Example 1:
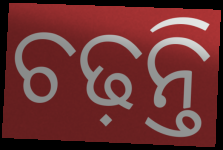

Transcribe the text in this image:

ଚଢ଼ନ୍ତି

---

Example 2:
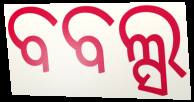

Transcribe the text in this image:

ବବଲ୍ସ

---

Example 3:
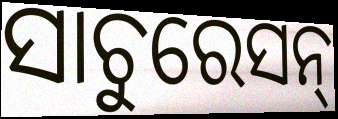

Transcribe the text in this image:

ସାଚୁରେସନ୍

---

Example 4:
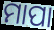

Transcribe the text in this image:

ମାପା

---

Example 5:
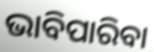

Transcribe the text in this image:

ଭାବିପାରିବା